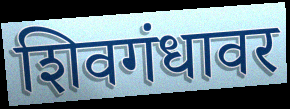
शिवगंधावर